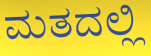
ಮತದಲ್ಲಿ